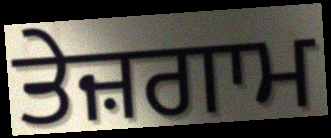
ਤੇਜ਼ਗਾਮ